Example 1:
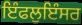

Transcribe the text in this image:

ਇੰਫਲੁਇੰਸਰ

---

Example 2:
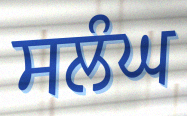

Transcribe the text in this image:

ਸਲੰਘ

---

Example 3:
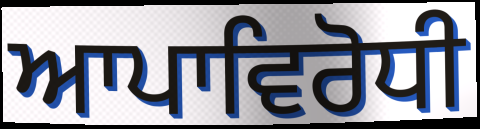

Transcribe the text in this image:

ਆਪਾਵਿਰੋਧੀ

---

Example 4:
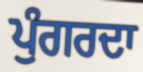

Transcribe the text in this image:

ਪੁੰਗਰਦਾ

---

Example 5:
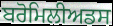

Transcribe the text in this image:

ਬਰੋਮਿਲੀਅਡਸ